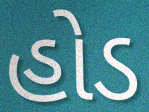
હોડ